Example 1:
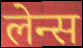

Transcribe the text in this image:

लेन्स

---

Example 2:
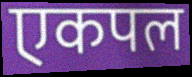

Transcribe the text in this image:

एकपल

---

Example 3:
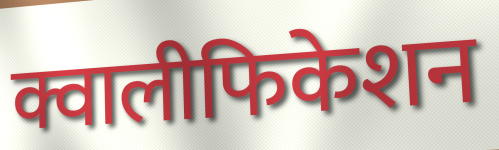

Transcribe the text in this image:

क्वालीफिकेशन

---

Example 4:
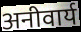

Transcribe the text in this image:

अनीवार्य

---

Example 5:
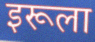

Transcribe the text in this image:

इरूला